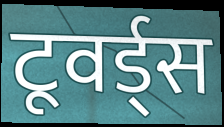
टूवर्ड्स